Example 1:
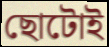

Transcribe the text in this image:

ছোটোই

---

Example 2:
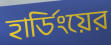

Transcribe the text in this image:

হার্ডিংয়ের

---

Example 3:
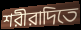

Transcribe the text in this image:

শরীরাদিতে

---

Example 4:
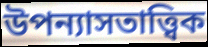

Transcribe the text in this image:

উপন্যাসতাত্ত্বিক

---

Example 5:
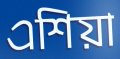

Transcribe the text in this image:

এশিয়া